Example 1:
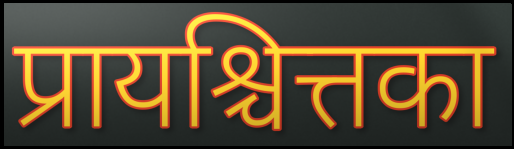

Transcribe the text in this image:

प्रायश्चित्तका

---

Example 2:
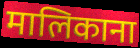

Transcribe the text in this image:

मालिकाना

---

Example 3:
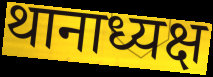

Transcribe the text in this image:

थानाध्यक्ष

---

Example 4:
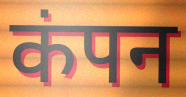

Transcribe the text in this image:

कंपन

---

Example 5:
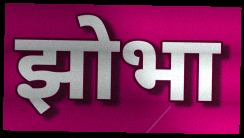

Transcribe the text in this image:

झोभा